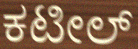
ಕಟೀಲ್